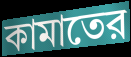
কামাতের